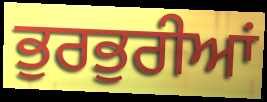
ਭੁਰਭੁਰੀਆਂ